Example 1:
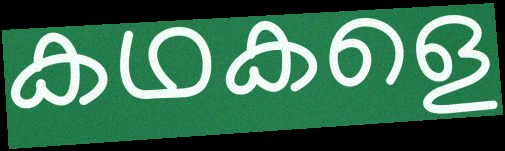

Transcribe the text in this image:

കഥകളെ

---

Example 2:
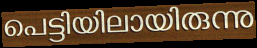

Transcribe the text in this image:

പെട്ടിയിലായിരുന്നു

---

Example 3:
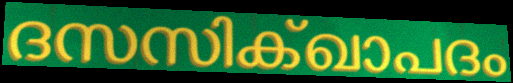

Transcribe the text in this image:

ദസസിക്ഖാപദം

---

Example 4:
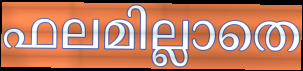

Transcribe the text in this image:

ഫലമില്ലാതെ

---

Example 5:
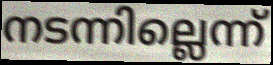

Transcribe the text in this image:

നടന്നില്ലെന്ന്